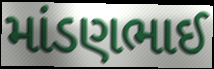
માંડણભાઈ